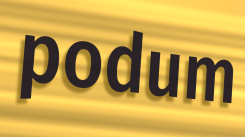
podum